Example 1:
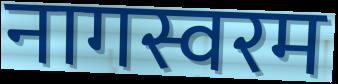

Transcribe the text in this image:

नागस्वरम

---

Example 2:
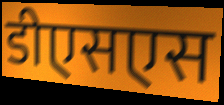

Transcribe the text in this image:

डीएसएस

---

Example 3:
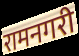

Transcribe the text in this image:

रामनगरी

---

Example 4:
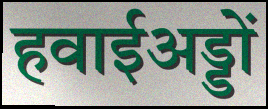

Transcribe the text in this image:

हवाईअड्डों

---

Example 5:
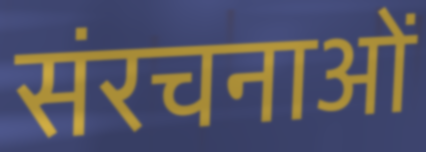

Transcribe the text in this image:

संरचनाओं